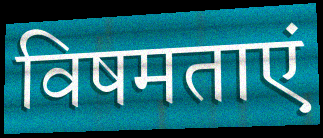
विषमताएं